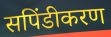
सपिंडीकरण